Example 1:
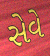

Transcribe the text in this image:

સેવે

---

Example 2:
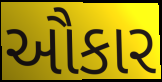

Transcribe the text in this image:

ઔકાર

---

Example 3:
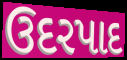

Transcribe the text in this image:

ઉદરપાદ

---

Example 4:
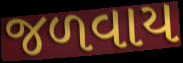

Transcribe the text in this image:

જળવાય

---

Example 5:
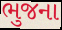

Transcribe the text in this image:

ભુજના